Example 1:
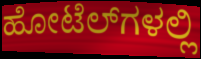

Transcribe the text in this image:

ಹೋಟೆಲ್‍ಗಳಲ್ಲಿ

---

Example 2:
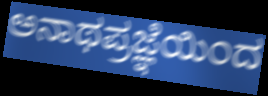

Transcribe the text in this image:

ಅನಾಥಪ್ರಜ್ಞೆಯಿಂದ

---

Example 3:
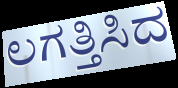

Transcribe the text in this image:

ಲಗತ್ತಿಸಿದ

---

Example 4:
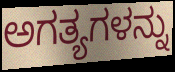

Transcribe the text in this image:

ಅಗತ್ಯಗಳನ್ನು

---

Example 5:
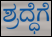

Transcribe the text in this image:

ಶ್ರದ್ಧೆಗೆ